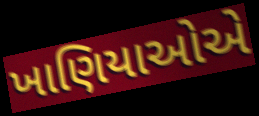
ખાણિયાઓએ